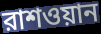
রাশওয়ান